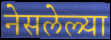
नेसलेल्या